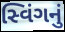
સ્વિંગનું